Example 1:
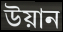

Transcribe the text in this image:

উয়ান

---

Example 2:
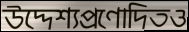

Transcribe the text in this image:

উদ্দেশ্যপ্রণোদিতও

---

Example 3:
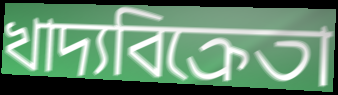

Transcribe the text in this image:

খাদ্যবিক্রেতা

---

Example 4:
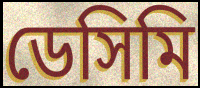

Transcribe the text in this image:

ডেসিমি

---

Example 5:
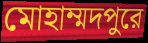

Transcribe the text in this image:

মোহাম্মদপুরে